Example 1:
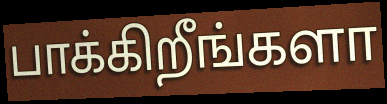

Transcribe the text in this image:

பாக்கிறீங்களா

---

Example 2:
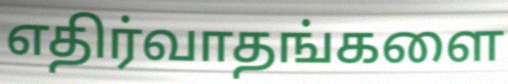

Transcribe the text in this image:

எதிர்வாதங்களை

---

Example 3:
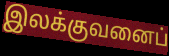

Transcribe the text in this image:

இலக்குவனைப்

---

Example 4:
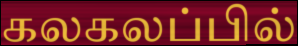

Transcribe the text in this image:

கலகலப்பில்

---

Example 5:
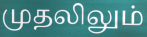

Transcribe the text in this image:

முதலிலும்